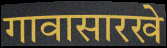
गावासारखे